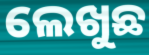
ଲେଖୁଛ